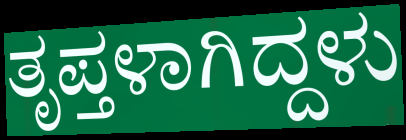
ತೃಪ್ತಳಾಗಿದ್ದಳು